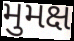
મુમક્ષ